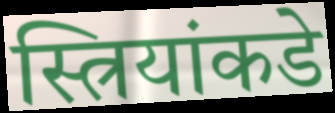
स्त्रियांकडे